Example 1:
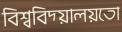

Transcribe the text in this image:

বিশ্ববিদ্য়ালয়তো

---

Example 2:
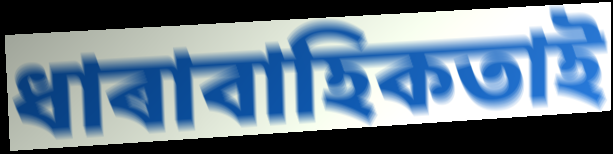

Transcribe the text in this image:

ধাৰাবাহিকতাই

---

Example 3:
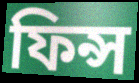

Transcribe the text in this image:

ফিন্স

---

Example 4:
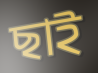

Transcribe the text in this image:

ছাই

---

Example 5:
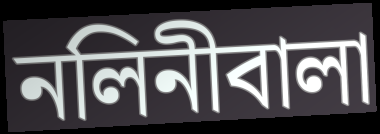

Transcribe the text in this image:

নলিনীবালা